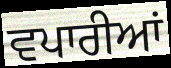
ਵਪਾਰੀਆਂ